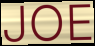
JOE